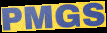
PMGS